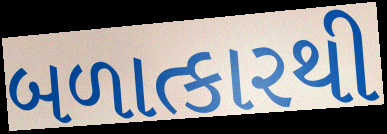
બળાત્કારથી